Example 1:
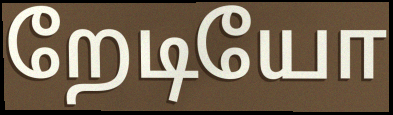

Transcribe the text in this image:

றேடியோ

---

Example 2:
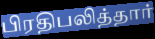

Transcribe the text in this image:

பிரதிபலித்தார்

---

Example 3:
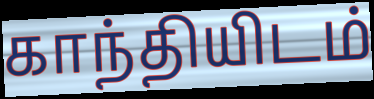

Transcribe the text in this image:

காந்தியிடம்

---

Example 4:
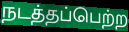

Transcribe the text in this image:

நடத்தப்பெற்ற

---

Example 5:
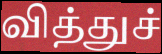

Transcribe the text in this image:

வித்துச்